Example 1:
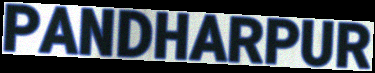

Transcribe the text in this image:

PANDHARPUR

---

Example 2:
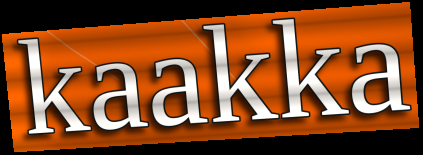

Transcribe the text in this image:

kaakka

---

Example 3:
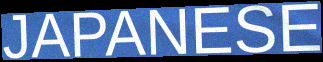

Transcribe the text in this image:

JAPANESE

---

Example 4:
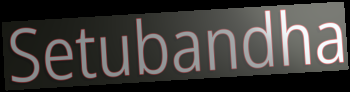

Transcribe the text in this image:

Setubandha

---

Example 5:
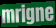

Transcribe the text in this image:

mrigne